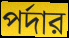
পর্দার